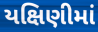
યક્ષિણીમાં